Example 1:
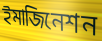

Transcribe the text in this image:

ইমাজিনেশন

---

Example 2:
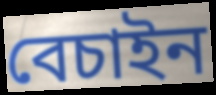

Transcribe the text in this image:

বেচাইন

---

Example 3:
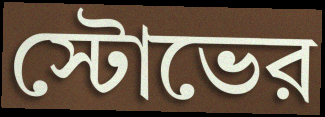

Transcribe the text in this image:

স্টোভের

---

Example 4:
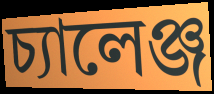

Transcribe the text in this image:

চ্যালেঞ্জ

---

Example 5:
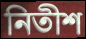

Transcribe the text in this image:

নিতীশ